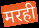
मरही